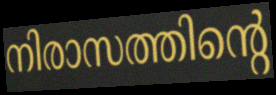
നിരാസത്തിന്റെ